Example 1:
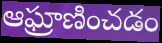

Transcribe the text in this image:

ఆఘ్రాణించడం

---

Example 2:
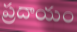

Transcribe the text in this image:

ప్రదాయం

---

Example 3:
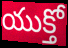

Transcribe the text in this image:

యుక్తో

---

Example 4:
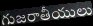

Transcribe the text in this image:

గుజరాతీయులు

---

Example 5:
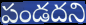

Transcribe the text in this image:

పండదని